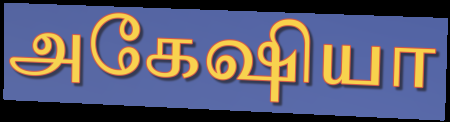
அகேஷியா